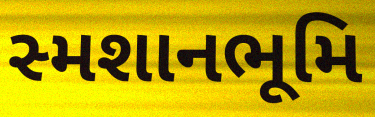
સ્મશાનભૂમિ